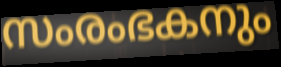
സംരംഭകനും